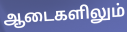
ஆடைகளிலும்